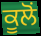
ਕੂਲੋਂ